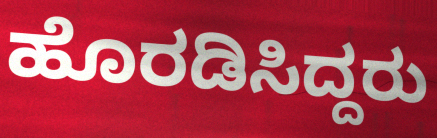
ಹೊರಡಿಸಿದ್ದರು